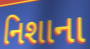
નિશાના